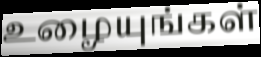
உழையுங்கள்